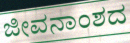
ಜೀವನಾಂಶದ